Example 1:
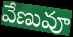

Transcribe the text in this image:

వేణువూ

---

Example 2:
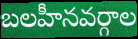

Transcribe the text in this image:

బలహీనవర్గాల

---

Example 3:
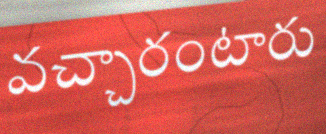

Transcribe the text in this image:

వచ్చారంటారు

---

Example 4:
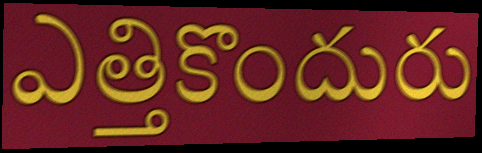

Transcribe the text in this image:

ఎత్తికొందురు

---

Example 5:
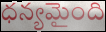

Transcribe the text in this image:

ధన్యమైంది